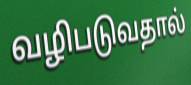
வழிபடுவதால்